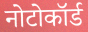
नोटोकॉर्ड